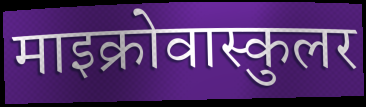
माइक्रोवास्कुलर